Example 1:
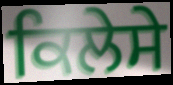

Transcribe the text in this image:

ਕਿਲੇਸੇ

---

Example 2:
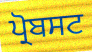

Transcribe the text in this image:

ਪ੍ਰੋਬਸਟ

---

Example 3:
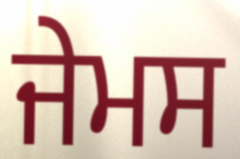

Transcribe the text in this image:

ਜੇਮਸ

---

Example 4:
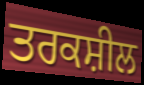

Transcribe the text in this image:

ਤਰਕਸ਼ੀਲ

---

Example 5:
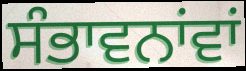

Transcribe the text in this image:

ਸੰਭਾਵਨਾਂਵਾਂ